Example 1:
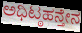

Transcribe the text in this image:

ಅಧಿಟ್ಠಹನ್ತೇನ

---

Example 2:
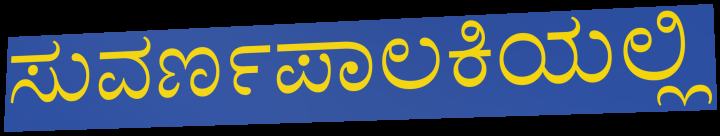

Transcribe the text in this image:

ಸುವರ್ಣಪಾಲಕಿಯಲ್ಲಿ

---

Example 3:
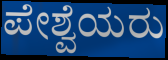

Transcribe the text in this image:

ಪೇಶ್ವೆಯರು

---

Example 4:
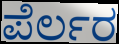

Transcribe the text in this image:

ಪೆರ್ಲರ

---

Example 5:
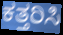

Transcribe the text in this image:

ಕತ್ತರಿಸಿ